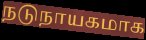
நடுநாயகமாக